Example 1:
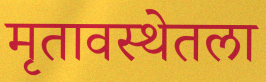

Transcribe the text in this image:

मृतावस्थेतला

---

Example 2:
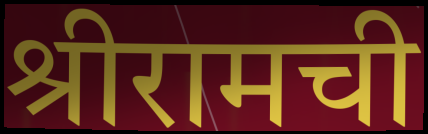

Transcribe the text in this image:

श्रीरामची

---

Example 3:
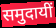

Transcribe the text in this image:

समुदायीं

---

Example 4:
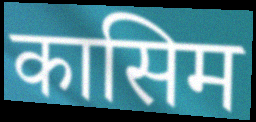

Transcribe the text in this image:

कासिम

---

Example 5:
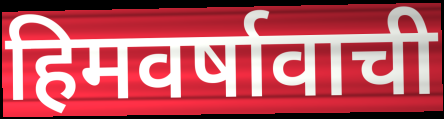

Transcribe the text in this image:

हिमवर्षावाची